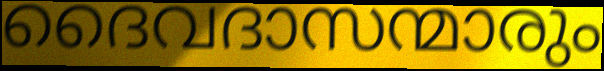
ദൈവദാസന്മാരും